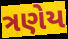
ત્રણેય